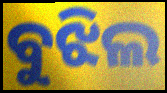
ବୁଝିଲ